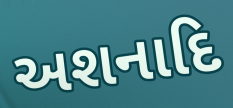
અશનાદિ